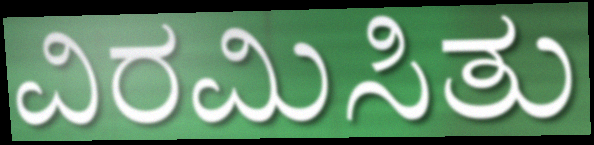
ವಿರಮಿಸಿತು